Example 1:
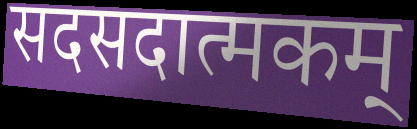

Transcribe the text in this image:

सदसदात्मकम्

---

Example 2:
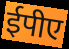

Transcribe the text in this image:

ईपीए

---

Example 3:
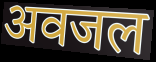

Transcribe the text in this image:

अवजल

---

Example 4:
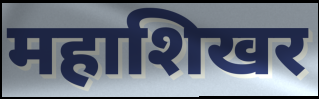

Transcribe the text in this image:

महाशिखर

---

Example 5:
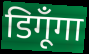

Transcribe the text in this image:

डिगूँगा